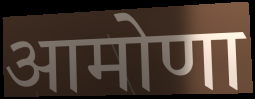
आमोणा